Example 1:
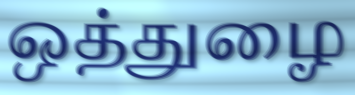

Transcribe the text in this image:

ஒத்துழை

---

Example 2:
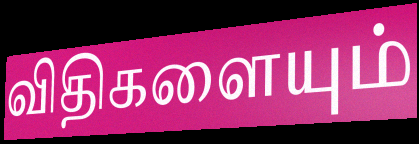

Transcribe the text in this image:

விதிகளையும்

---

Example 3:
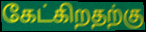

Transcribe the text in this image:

கேட்கிறதற்கு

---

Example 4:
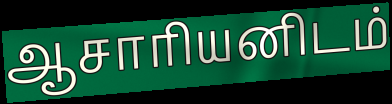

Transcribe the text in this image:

ஆசாரியனிடம்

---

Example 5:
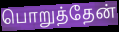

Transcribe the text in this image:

பொறுத்தேன்